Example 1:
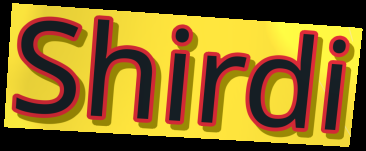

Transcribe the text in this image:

Shirdi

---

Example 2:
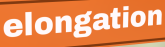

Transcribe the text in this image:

elongation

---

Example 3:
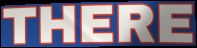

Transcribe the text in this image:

THERE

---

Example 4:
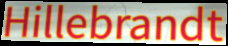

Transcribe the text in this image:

Hillebrandt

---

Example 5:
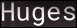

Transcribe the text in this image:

Huges